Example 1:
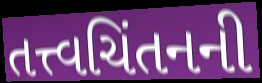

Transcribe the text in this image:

તત્ત્વચિંતનની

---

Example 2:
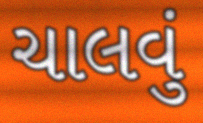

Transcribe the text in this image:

ચાલવું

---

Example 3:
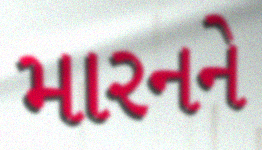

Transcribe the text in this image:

મારનને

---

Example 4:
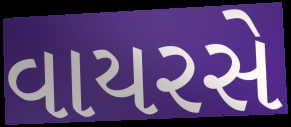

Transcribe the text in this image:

વાયરસે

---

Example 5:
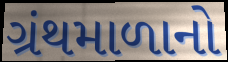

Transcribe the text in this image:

ગ્રંથમાળાનો